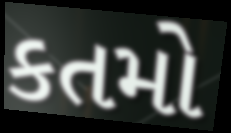
કતમો